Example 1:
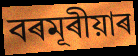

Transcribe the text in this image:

বৰমূৰীয়াৰ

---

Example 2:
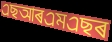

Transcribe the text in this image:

এছআৰএমএছৰ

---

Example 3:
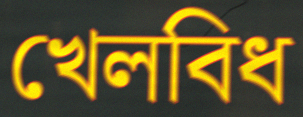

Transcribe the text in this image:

খেলবিধ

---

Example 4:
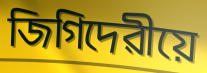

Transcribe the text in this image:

জিগিদেৱীয়ে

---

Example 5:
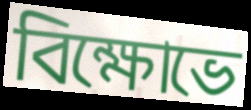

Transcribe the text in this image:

বিক্ষোভে